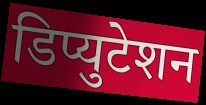
डिप्युटेशन